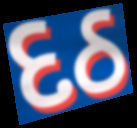
દઠ